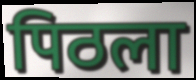
पिठला